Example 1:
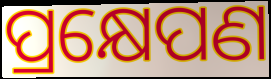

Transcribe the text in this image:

ପ୍ରକ୍ଷେପଣ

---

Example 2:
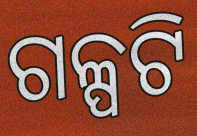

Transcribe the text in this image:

ଗଳ୍ପଟି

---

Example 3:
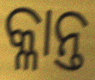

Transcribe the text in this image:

କ୍ଳାନ୍ତ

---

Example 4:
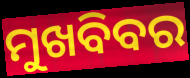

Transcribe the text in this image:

ମୁଖବିବର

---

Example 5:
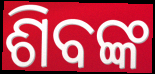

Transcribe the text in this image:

ଶିବଙ୍କ